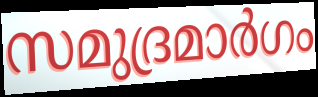
സമുദ്രമാർഗം